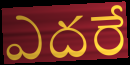
ఎదరే